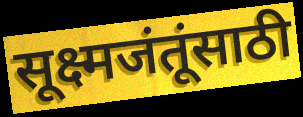
सूक्ष्मजंतूंसाठी